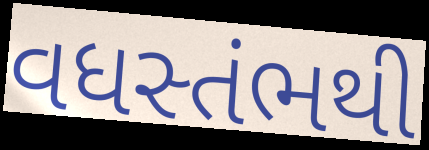
વધસ્તંભથી